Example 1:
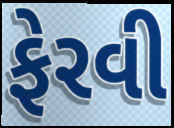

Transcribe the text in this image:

ફેરવી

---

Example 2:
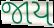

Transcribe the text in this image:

જાય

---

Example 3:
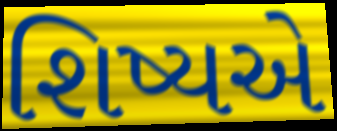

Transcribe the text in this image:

શિષ્યએ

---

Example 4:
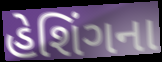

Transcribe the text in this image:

હેશિંગના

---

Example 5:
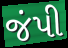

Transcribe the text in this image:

જંપી